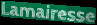
Lamairesse